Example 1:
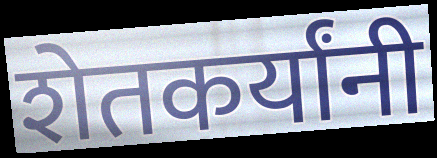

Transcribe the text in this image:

शेतकर्यांनी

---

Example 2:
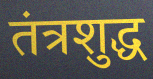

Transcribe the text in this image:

तंत्रशुद्ध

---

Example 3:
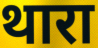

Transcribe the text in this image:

थारा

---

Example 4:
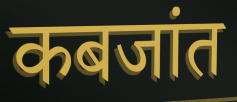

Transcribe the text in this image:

कबजांत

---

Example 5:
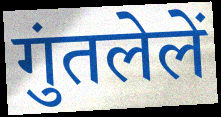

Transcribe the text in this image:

गुंतलेलें